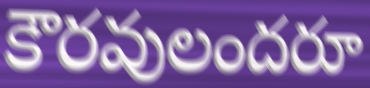
కౌరవులందరూ